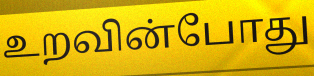
உறவின்போது